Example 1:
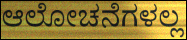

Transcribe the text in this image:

ಆಲೋಚನೆಗಳಲ್ಲ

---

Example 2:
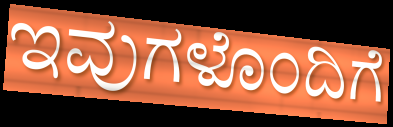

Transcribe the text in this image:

ಇವುಗಳೊಂದಿಗೆ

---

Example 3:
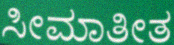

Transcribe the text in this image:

ಸೀಮಾತೀತ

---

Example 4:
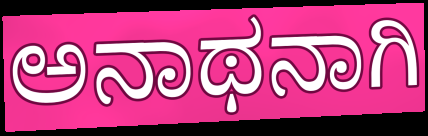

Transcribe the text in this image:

ಅನಾಥನಾಗಿ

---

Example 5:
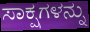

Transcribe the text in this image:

ಸಾಕ್ಷಗಳನ್ನು